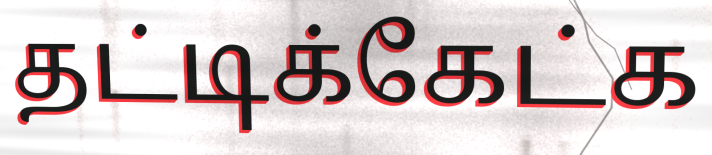
தட்டிக்கேட்க